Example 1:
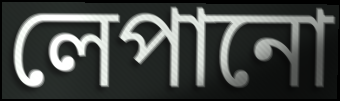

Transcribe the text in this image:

লেপানো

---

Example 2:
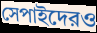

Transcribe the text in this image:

সেপাইদেরও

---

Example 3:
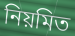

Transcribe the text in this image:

নিয়মিত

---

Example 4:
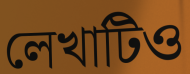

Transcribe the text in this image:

লেখাটিও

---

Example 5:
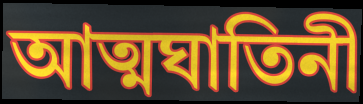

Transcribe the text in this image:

আত্মঘাতিনী